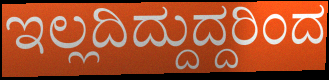
ಇಲ್ಲದಿದ್ದುದ್ದರಿಂದ